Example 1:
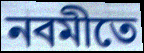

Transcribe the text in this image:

নবমীতে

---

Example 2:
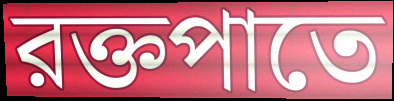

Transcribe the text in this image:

রক্তপাতে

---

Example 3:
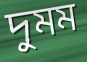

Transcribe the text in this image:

দুমম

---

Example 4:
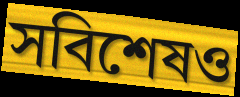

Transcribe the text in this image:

সবিশেষও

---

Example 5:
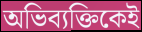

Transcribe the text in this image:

অভিব্যক্তিকেই